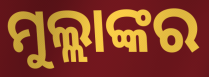
ମୁଲ୍ଲାଙ୍କର